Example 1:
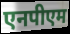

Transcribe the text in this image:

एनपीएम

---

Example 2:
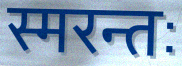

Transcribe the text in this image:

स्मरन्तः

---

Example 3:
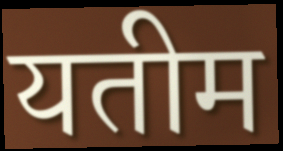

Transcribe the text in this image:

यतीम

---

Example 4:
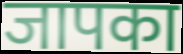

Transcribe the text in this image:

जापका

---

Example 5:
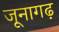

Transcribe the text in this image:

जूनागढ़